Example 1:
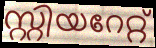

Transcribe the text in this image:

സ്റ്റിയറേറ്റ്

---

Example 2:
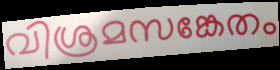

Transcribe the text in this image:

വിശ്രമസങ്കേതം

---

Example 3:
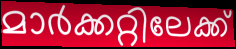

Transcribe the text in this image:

മാർക്കറ്റിലേക്ക്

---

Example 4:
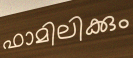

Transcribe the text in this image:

ഫാമിലിക്കും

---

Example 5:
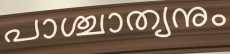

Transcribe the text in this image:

പാശ്ചാത്യനും